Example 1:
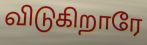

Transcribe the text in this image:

விடுகிறாரே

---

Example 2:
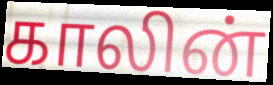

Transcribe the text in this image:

காலின்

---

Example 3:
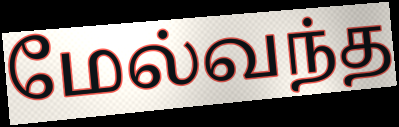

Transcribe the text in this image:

மேல்வந்த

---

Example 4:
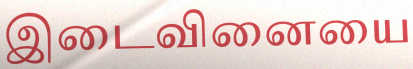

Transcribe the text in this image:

இடைவினையை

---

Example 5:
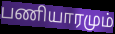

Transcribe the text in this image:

பணியாரமும்